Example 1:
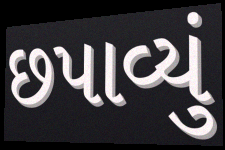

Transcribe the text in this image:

છપાવ્યું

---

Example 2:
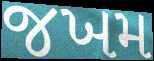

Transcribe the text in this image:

જખમ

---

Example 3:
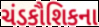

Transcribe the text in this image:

ચંડકૌશિકના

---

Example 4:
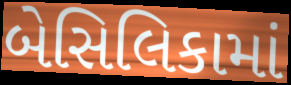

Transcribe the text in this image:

બેસિલિકામાં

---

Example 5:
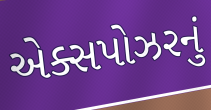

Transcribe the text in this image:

એક્સપોઝરનું